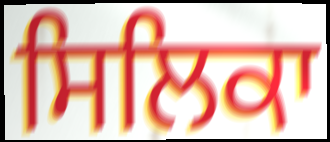
ਸਿਲਿਕਾ